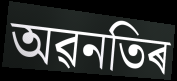
অৱনতিৰ